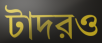
টাদরও